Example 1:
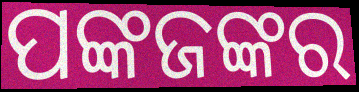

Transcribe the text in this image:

ପଙ୍କଜଙ୍କର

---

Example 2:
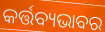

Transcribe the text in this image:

କର୍ତ୍ତବ୍ୟଭାବର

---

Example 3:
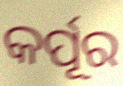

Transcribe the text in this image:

କର୍ପୂର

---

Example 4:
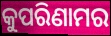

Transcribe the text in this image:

କୁପରିଣାମର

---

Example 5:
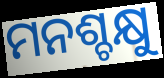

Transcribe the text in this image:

ମନଶ୍ଚକ୍ଷୁ